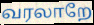
வரலாறே